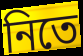
নিতে